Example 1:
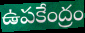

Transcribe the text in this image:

ఉపకేంద్రం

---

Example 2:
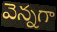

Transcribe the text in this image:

వెన్నగా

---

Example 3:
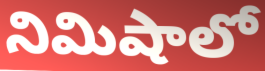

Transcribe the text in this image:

నిమిషాలో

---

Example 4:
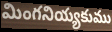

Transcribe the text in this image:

మింగనియ్యకుము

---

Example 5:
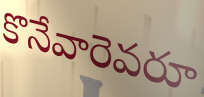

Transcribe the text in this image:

కొనేవారెవరూ